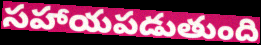
సహాయపడుతుంది